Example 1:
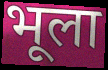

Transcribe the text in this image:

भूला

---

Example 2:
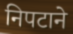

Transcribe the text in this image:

निपटाने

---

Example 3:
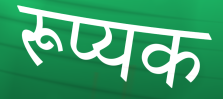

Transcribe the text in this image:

रूप्यक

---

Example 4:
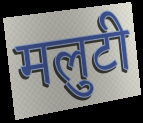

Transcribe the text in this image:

मलुटी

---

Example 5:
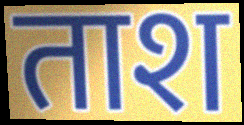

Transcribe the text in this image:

ताश